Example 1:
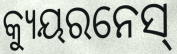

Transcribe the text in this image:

କ୍ୟୁୟରନେସ୍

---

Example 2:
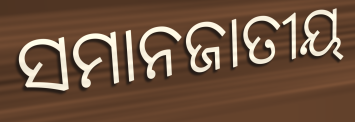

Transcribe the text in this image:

ସମାନଜାତୀୟ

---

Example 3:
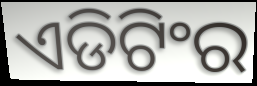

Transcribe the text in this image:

ଏଡିଟିଂର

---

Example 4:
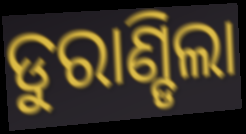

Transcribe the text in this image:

ଡୁରାଣ୍ଡିଲା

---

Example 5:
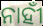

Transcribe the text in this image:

ନାହୀଁ